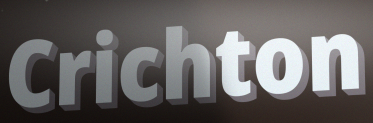
Crichton